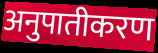
अनुपातीकरण